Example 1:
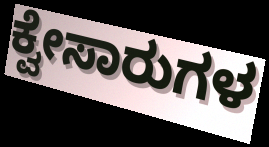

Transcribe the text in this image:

ಕ್ವೇಸಾರುಗಳ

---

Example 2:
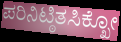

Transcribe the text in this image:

ಪರಿನಿಟ್ಠಿತಸಿಕ್ಖೋ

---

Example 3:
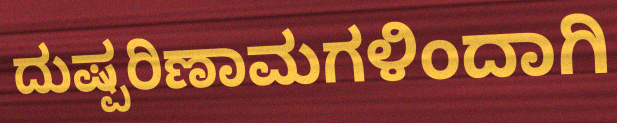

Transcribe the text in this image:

ದುಷ್ಪರಿಣಾಮಗಳಿಂದಾಗಿ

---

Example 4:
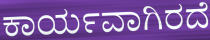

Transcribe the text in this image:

ಕಾರ್ಯವಾಗಿರದೆ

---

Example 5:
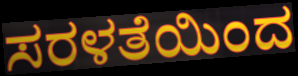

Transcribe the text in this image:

ಸರಳತೆಯಿಂದ